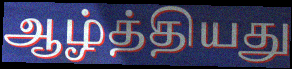
ஆழ்த்தியது